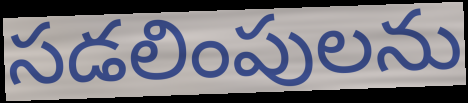
సడలింపులను